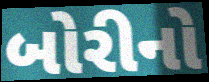
બોરીનો